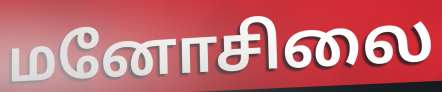
மனோசிலை